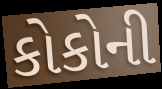
કોકોની